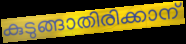
കുടുങ്ങാതിരിക്കാന്